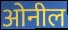
ओनील